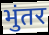
भुंतर